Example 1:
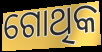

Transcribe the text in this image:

ଗୋଥିକ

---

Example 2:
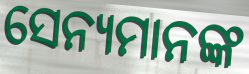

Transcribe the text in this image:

ସେନ୍ୟମାନଙ୍କ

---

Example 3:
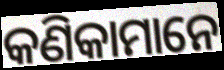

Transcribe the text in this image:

କଣିକାମାନେ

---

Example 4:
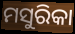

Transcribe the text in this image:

ମସୁରିକା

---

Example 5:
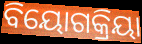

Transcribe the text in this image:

ବିୟୋଗକ୍ରିୟା